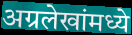
अग्रलेखांमध्ये